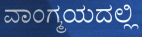
ವಾಂಗ್ಮಯದಲ್ಲಿ